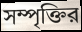
সম্পৃক্তির